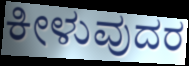
ಕೀಳುವುದರ